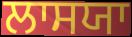
ਲਾਸਯਾ